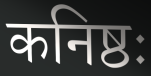
कनिष्ठः